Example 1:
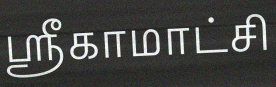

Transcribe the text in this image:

ஸ்ரீகாமாட்சி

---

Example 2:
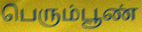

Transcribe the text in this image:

பெரும்பூண்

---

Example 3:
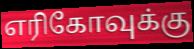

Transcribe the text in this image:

எரிகோவுக்கு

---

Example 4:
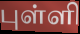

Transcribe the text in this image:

புள்ளி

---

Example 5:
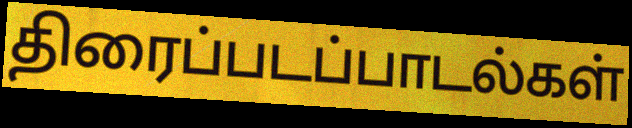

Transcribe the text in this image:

திரைப்படப்பாடல்கள்